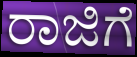
ರಾಜಿಗೆ